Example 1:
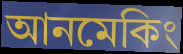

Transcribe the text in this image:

আনমেকিং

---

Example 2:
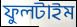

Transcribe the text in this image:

ফুলটাইম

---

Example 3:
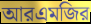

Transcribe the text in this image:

আরএমজির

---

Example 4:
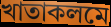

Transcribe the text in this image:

খাতাকলমে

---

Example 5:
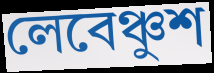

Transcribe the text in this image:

লেবেঞ্চুশ